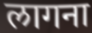
लागना